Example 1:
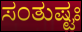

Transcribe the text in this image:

ಸಂತುಷ್ಟಃ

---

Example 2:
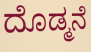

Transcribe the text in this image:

ದೊಡ್ಮನೆ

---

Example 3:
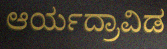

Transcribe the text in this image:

ಆರ್ಯದ್ರಾವಿಡ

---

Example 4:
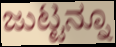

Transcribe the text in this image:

ಜುಟ್ಟನ್ನೂ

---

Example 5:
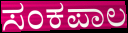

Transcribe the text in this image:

ಸಂಕಪಾಲ